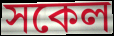
সকেল